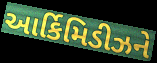
આર્કિમિડીઝને